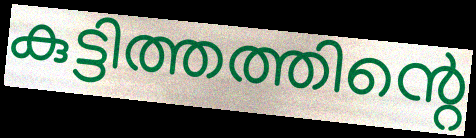
കുട്ടിത്തത്തിന്റെ